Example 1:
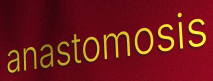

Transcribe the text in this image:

anastomosis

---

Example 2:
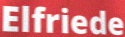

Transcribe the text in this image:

Elfriede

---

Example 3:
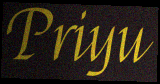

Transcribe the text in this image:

Priyu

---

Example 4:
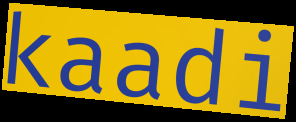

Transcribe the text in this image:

kaadi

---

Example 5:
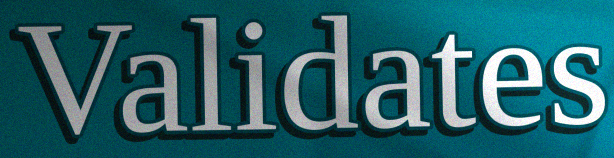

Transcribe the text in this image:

Validates